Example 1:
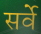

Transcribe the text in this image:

सर्वे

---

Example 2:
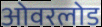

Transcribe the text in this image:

ओवरलोड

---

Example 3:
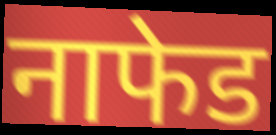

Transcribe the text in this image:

नाफेड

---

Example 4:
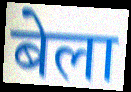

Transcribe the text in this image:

बेला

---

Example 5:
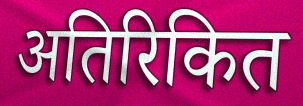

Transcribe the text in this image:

अतिरिकित